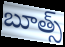
బూత్స్